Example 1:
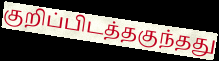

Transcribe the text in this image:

குறிப்பிடத்தகுந்தது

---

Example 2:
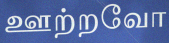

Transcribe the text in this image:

ஊற்றவோ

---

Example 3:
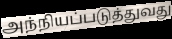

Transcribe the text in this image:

அந்நியப்படுத்துவது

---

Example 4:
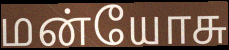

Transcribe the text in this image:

மன்யோசு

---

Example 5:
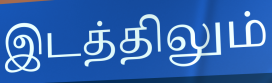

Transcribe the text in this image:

இடத்திலும்